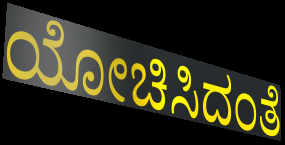
ಯೋಚಿಸಿದಂತೆ